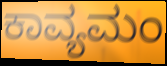
ಕಾವ್ಯಮಂ